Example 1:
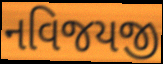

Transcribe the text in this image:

નવિજયજી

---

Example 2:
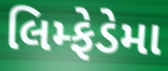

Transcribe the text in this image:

લિમ્ફેડેમા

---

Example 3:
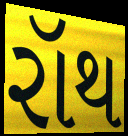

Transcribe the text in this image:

રૉથ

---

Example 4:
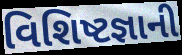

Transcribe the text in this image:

વિશિષ્ટજ્ઞાની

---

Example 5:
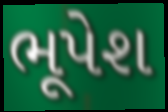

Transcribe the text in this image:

ભૂપેશ